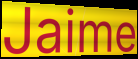
Jaime